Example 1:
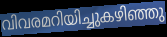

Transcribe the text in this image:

വിവരമറിയിച്ചുകഴിഞ്ഞു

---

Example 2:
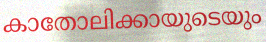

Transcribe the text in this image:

കാതോലിക്കായുടെയും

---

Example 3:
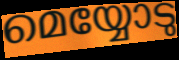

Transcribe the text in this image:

മെയ്യോടു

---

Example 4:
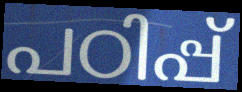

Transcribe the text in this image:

പഠിപ്പ്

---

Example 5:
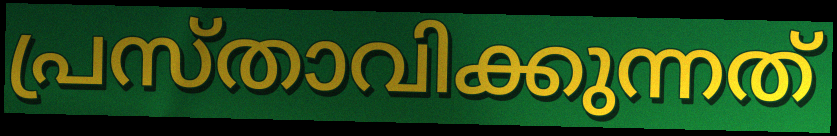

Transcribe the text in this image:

പ്രസ്താവിക്കുന്നത്